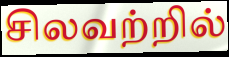
சிலவற்றில்